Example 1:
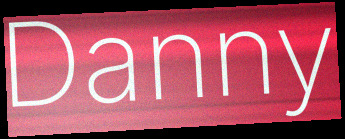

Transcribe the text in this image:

Danny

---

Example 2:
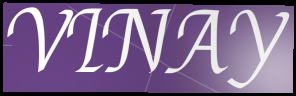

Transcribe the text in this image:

VINAY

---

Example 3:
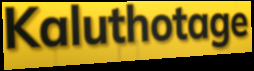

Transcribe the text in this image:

Kaluthotage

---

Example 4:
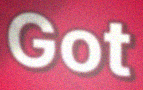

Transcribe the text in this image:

Got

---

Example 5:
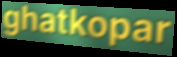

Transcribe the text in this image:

ghatkopar